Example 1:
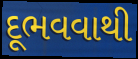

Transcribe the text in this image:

દૂભવવાથી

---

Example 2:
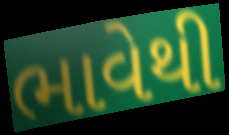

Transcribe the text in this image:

ભાવેથી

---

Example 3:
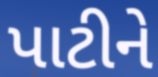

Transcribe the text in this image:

પાટીને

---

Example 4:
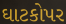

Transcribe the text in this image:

ઘાટકોપર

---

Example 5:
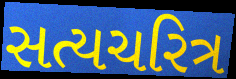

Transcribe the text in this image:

સત્યચરિત્ર